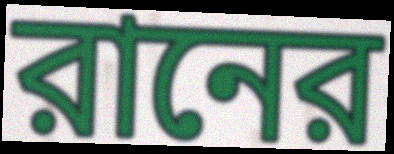
রানের